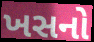
ખસનો